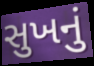
સુખનું